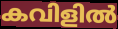
കവിളിൽ